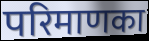
परिमाणका